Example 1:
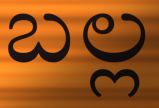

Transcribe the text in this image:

బల్ల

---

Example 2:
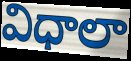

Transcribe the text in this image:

విధాలా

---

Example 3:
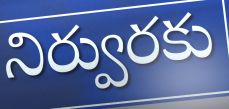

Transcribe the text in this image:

నిర్వురకు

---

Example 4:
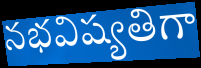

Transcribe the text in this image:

నభవిష్యతిగా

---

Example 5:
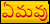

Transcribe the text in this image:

ఏమవు